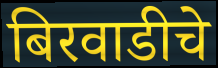
बिरवाडीचे